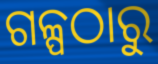
ଗଳ୍ପଠାରୁ